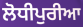
ਲੋਧੀਪੁਰੀਆ